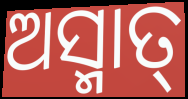
ଅସ୍ମାତ୍